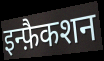
इन्फ़ैकशन